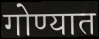
गोण्यात